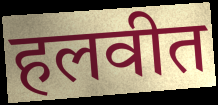
हलवीत